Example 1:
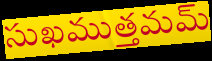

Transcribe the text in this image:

సుఖముత్తమమ్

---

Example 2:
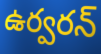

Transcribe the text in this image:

ఉర్వరన్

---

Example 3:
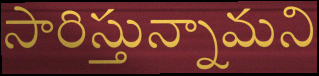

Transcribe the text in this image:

సారిస్తున్నామని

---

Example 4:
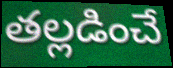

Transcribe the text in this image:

తల్లడించే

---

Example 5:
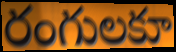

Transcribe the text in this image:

రంగులకూ